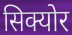
सिक्योर